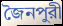
জৈনপুরী